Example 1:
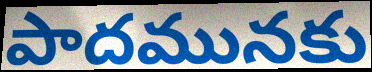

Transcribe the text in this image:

పాదమునకు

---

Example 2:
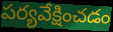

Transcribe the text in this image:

పర్యవేక్షించడం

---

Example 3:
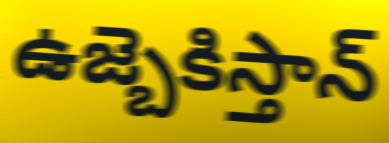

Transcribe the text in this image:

ఉజ్బెకిస్తాన్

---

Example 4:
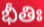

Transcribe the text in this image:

భీతిః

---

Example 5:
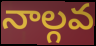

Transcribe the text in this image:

నాల్గవ